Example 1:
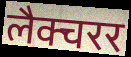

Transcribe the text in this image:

लैक्चरर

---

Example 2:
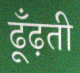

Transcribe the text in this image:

ढूँढ़ती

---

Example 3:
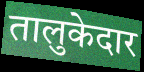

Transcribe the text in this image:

तालुकेदार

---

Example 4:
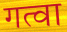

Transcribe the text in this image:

गत्वा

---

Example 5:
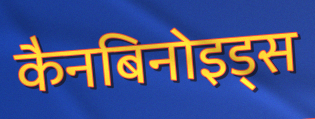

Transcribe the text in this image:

कैनबिनोइड्स